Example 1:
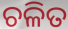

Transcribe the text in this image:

ଚଳିତ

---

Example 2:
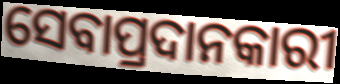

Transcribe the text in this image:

ସେବାପ୍ରଦାନକାରୀ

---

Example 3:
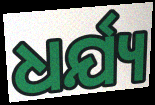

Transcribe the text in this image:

ଧର୍ଯ୍ୟ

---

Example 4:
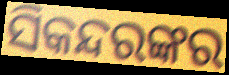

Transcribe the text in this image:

ସିକନ୍ଦରଙ୍କର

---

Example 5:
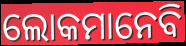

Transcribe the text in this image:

ଲୋକମାନେବି